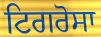
ਟਿਗਰੋਸਾ